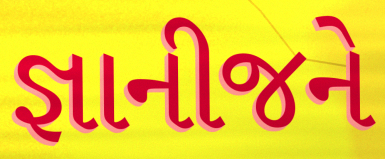
જ્ઞાનીજને